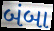
બંબા